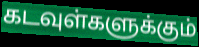
கடவுள்களுக்கும்